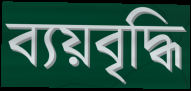
ব্যয়বৃদ্ধি